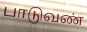
பாடுவண்